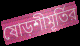
ষোড়শীমূর্তির